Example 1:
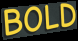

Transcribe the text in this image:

BOLD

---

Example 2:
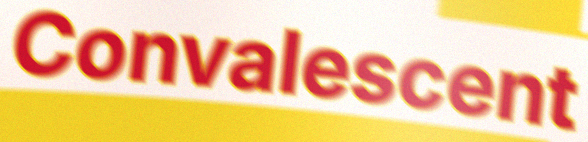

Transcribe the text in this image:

Convalescent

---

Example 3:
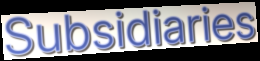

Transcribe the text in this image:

Subsidiaries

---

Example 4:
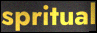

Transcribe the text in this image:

spritual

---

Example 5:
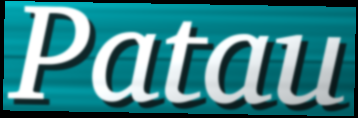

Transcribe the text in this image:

Patau